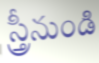
స్త్రీనుండి